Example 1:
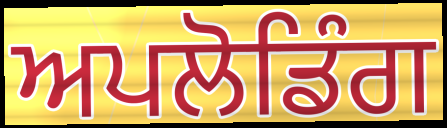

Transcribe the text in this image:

ਅਪਲੋਡਿੰਗ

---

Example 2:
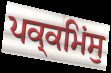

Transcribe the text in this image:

ਪਕ੍ਕਮਿਂਸੁ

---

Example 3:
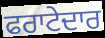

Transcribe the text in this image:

ਫਰਾਟੇਦਾਰ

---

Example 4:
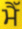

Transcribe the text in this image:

ਮੈੱ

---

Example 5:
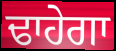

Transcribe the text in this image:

ਢਾਹੇਗਾ